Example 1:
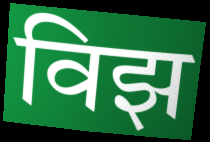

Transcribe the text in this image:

विझ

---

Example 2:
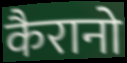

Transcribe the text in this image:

कैरानो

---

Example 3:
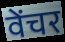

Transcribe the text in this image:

वेंचर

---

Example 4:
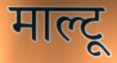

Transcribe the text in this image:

माल्टू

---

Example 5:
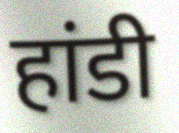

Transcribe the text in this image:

हांडी